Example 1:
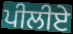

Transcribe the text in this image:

ਪੀਲੀਏ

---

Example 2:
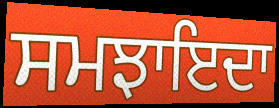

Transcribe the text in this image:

ਸਮਝਾਇਦਾ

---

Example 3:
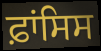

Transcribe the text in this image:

ਫ਼ਾਂਸਿਸ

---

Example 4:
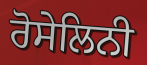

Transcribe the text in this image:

ਰੋਸੇਲਿਨੀ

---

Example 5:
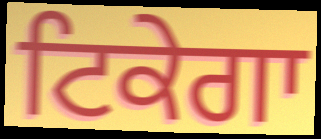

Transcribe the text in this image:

ਟਿਕੇਗਾ